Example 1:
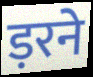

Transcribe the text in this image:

ड़रने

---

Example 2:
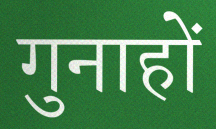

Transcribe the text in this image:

गुनाहों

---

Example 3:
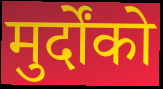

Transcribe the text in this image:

मुर्दोंको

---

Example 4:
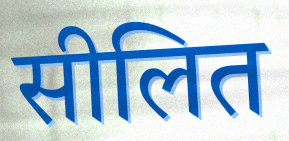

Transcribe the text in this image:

सीलित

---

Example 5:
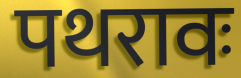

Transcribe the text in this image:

पथरावः